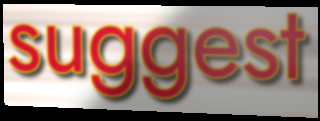
suggest